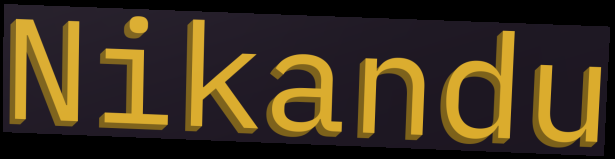
Nikandu